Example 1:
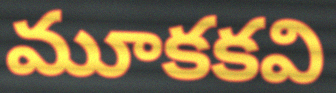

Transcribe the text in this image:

మూకకవి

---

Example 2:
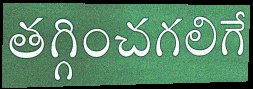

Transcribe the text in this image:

తగ్గించగలిగే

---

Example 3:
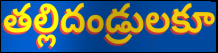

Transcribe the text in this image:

తల్లిదండ్రులకూ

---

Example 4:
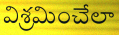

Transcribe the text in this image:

విశ్రమించేలా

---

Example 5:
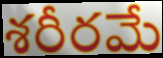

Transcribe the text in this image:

శరీరమే